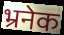
भ्रनेक